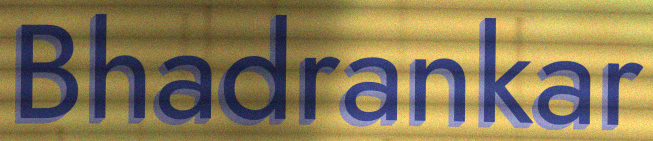
Bhadrankar